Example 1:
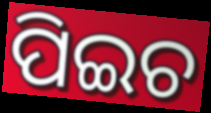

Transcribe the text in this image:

ପିଇଚ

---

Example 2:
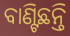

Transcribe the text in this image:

ବାଣ୍ଟିଛନ୍ତି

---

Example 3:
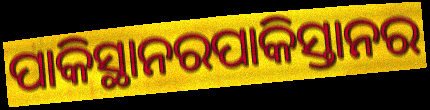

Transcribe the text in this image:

ପାକିସ୍ଥାନରପାକିସ୍ତାନର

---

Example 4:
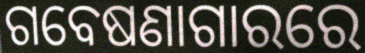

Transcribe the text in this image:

ଗବେଷଣାଗାରରେ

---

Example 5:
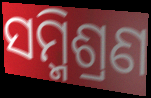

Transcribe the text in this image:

ସମ୍ମିଶ୍ରଣ